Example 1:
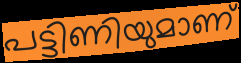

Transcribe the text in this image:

പട്ടിണിയുമാണ്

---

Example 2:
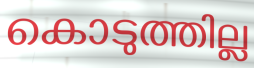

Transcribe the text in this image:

കൊടുത്തില്ല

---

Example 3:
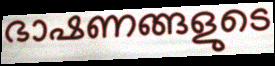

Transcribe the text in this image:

ഭാഷണങ്ങളുടെ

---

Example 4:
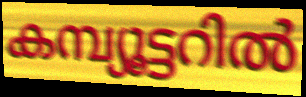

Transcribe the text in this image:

കമ്പ്യൂട്ടറിൽ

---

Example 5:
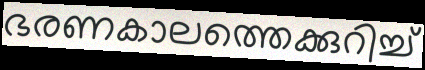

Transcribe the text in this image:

ഭരണകാലത്തെക്കുറിച്ച്